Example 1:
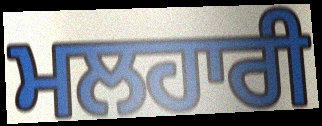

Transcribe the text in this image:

ਮਲਹਾਰੀ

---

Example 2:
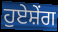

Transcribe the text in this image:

ਹੁਏਸ਼ੇਂਗ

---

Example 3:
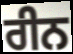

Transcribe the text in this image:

ਰੀਨ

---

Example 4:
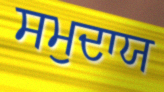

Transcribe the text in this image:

ਸਮੁਦਾਯ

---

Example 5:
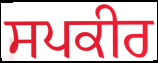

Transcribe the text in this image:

ਸਪਕੀਰ